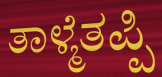
ತಾಳ್ಮೆತಪ್ಪಿ